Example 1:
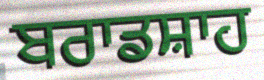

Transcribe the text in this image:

ਬਰਾਡਸ਼ਾਹ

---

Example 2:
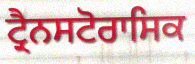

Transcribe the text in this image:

ਟ੍ਰੈਨਸਟੋਰਾਸਿਕ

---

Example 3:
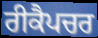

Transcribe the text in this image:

ਰੀਕੈਪਚਰ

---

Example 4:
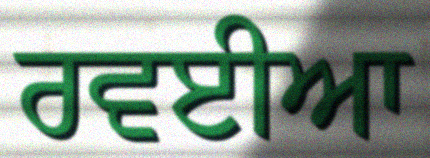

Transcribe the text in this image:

ਰਵਈਆ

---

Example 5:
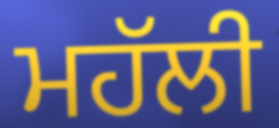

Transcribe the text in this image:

ਮਹੱਲੀ